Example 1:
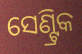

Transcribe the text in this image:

ସେଣ୍ଟ୍ରିକ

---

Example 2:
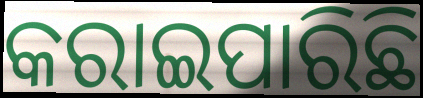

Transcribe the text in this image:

କରାଇପାରିଛି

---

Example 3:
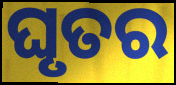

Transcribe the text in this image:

ଘୃତର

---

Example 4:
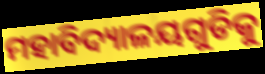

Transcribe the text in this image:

ମହାବିଦ୍ୟାଳୟଗୁଡିକୁ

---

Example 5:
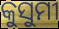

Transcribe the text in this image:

କୁସୁମୀ